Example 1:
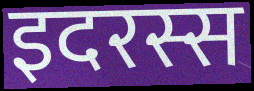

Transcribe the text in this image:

इदरस्स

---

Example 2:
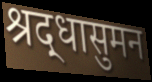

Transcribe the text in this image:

श्रद्धासुमन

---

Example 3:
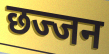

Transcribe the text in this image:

छज्जन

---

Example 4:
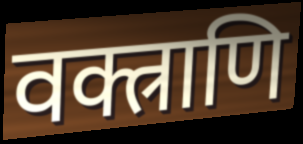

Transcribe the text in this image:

वक्त्राणि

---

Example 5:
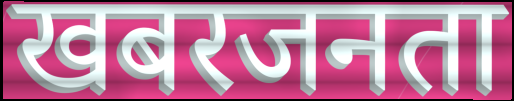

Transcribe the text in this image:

खबरजनता